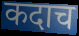
कदाच